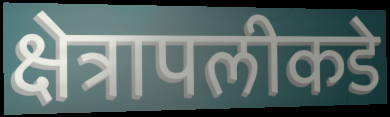
क्षेत्रापलीकडे